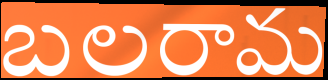
బలరామ